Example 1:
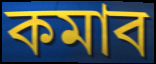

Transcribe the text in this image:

কমাব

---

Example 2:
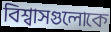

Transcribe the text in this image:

বিশ্বাসগুলোকে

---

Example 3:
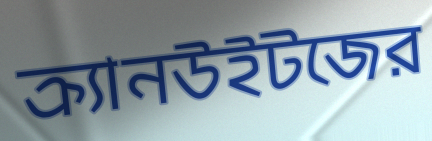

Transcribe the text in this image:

ক্র্যানউইটজের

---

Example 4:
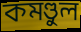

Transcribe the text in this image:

কমণ্ডুল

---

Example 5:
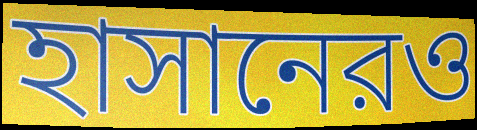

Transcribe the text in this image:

হাসানেরও